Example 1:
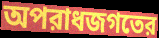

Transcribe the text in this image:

অপরাধজগতের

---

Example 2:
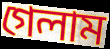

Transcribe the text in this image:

গেলাম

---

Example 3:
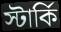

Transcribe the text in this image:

স্টার্কি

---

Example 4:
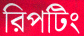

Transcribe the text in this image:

রিপটিং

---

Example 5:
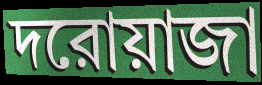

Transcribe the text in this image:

দরোয়াজা